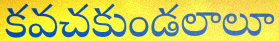
కవచకుండలాలూ